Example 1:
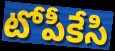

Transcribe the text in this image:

టోపీకేసి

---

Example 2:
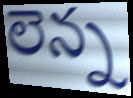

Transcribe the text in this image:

లెన్న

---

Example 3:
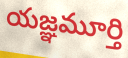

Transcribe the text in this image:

యజ్ఞమూర్తి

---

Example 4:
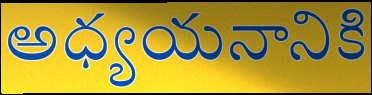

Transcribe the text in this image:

అధ్యయనానికి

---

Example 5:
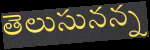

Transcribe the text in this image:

తెలుసునన్న